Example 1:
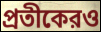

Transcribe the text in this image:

প্রতীকেরও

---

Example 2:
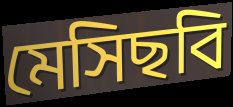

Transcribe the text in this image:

মেসিছবি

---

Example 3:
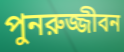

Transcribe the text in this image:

পুনরুজ্জীবন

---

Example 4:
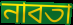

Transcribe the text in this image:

নাবতা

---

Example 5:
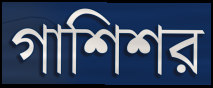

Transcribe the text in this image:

গাশিশর